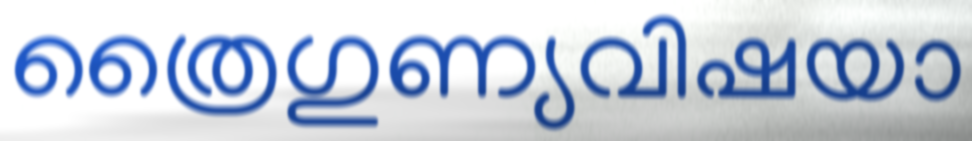
ത്രൈഗുണ്യവിഷയാ